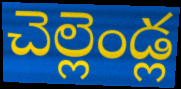
చెల్లెండ్ల